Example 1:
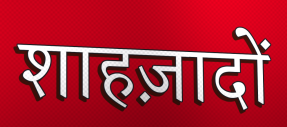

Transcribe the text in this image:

शाहज़ादों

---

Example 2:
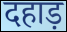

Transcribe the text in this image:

दहाड़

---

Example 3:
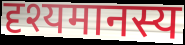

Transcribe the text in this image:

दृश्यमानस्य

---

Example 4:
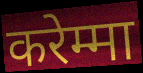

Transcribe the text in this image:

करेम्मा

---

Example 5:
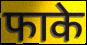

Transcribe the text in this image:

फाके